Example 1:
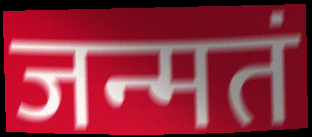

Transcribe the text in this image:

जन्मतं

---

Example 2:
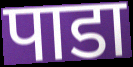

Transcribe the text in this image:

पाडा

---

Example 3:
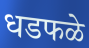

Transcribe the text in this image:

धडफळे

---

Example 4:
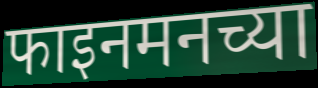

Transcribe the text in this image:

फाइनमनच्या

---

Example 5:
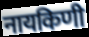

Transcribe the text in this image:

नायकिणी